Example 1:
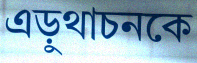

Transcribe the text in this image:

এড়ুথাচনকে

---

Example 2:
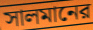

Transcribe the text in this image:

সালমানের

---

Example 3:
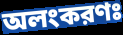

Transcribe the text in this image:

অলংকরণঃ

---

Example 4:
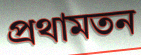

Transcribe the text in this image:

প্রথামতন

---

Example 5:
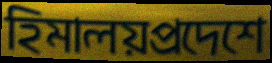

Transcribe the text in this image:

হিমালয়প্রদেশে